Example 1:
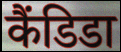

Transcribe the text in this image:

कैंडिडा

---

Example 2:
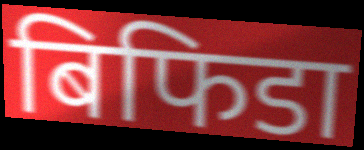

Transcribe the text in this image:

बिफिडा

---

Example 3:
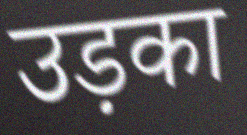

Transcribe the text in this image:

उड़का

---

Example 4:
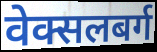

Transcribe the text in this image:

वेक्सलबर्ग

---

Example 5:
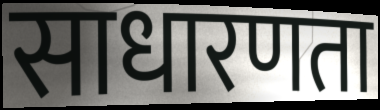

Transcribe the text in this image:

साधारणता